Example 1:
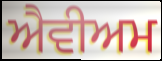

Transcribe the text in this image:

ਐਵੀਅਮ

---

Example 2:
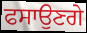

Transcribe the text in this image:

ਫਸਾਉਣਗੇ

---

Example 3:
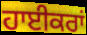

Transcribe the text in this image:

ਹਾਈਕਰਾਂ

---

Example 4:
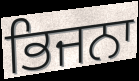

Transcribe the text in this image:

ਭਿਜਨਾ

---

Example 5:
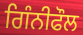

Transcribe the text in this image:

ਗਿੰਨੀਫੌਲ